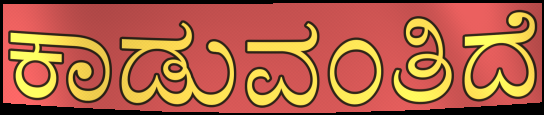
ಕಾಡುವಂತಿದೆ